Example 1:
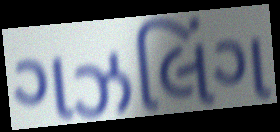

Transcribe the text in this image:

ગઝલિંગ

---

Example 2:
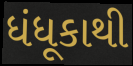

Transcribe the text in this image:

ધંધૂકાથી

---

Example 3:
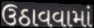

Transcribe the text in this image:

ઉઠાવવામાં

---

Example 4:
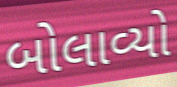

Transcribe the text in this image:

બોલાવ્યો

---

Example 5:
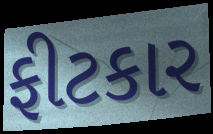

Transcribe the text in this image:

ફીટકાર